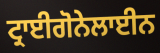
ਟ੍ਰਾਈਗੋਨੇਲਾਈਨ